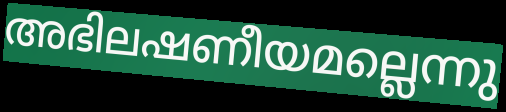
അഭിലഷണീയമല്ലെന്നു